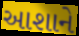
આશાને